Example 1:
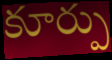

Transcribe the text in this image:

కూర్పు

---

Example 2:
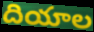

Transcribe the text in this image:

దియాల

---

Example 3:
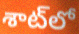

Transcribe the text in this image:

శాట్‌లో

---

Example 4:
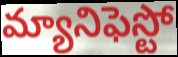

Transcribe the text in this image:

మ్యానిఫెస్టో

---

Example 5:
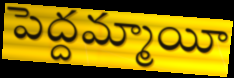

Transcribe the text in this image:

పెద్దమ్మాయీ